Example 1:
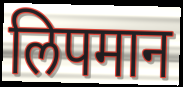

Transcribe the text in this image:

लिपमान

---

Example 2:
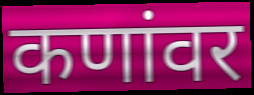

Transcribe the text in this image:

कणांवर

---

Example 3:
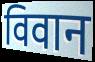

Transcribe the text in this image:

विवान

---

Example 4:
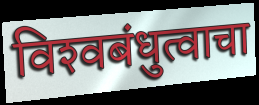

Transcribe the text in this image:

विश्वबंधुत्वाचा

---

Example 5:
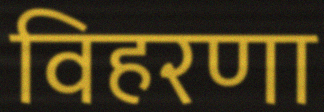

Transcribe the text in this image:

विहरणा